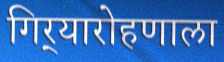
गिर्यारोहणाला